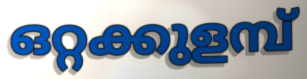
ഒറ്റക്കുളമ്പ്